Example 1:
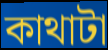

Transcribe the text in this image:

কাথাটা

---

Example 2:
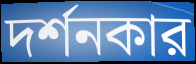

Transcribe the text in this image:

দর্শনকার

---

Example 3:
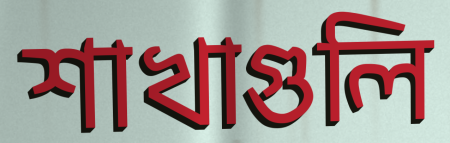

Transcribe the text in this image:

শাখাগুলি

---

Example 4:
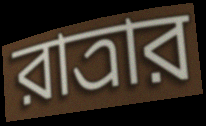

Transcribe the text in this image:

রাত্রার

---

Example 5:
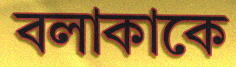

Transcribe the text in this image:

বলাকাকে